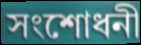
সংশোধনী